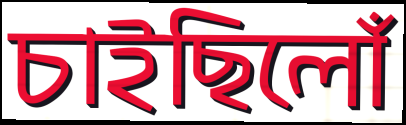
চাইছিলোঁ